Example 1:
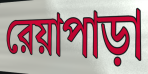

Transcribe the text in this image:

রেয়াপাড়া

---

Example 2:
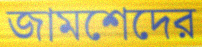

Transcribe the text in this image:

জামশেদের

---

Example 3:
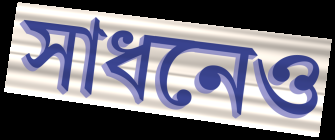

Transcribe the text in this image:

সাধনেও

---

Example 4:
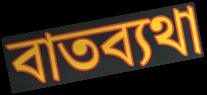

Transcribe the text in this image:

বাতব্যথা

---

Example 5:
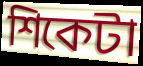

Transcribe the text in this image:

শিকেটা